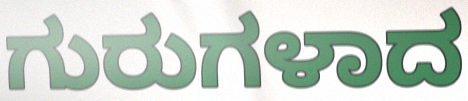
ಗುರುಗಳಾದ